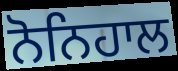
ਨੋਨਿਹਾਲ